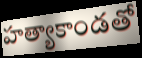
హత్యాకాండతో